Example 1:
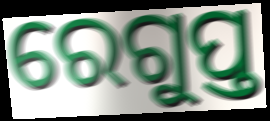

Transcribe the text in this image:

ରେଗୁପ୍ତ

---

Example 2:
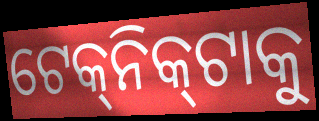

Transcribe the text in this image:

ଟେକ୍‌ନିକ୍‌ଟାକୁ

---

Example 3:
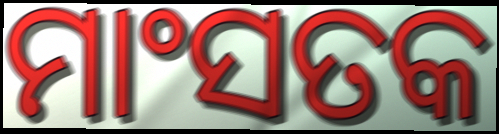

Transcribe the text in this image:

ମାଂସତକ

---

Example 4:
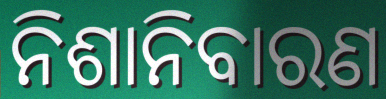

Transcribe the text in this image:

ନିଶାନିବାରଣ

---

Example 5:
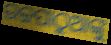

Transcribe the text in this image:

ଉଚ୍ଚପାଠୁଆଙ୍କୁ